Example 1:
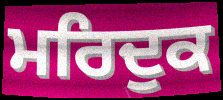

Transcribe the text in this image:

ਮਰਿਦੁਕ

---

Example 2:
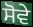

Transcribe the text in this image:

ਸੋਵੇ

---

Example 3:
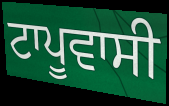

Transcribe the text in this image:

ਟਾਪੂਵਾਸੀ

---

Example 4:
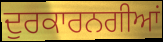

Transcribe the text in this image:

ਦੁਰਕਾਰਨਗੀਆਂ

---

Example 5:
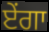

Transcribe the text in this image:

ਏਂਗਾ